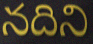
నదిని